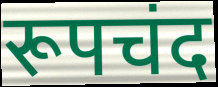
रूपचंद